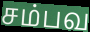
சம்பவ